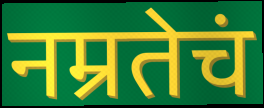
नम्रतेचं